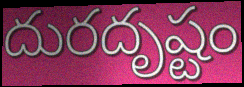
దురదృష్టం